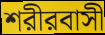
শরীরবাসী